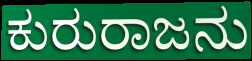
ಕುರುರಾಜನು